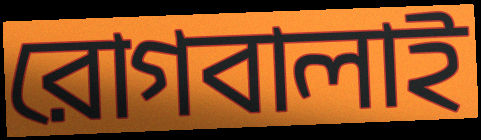
রোগবালাই